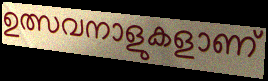
ഉത്സവനാളുകളാണ്